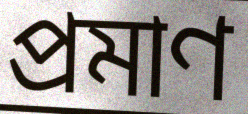
প্ৰমাণ